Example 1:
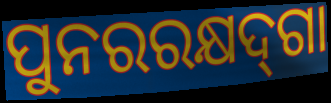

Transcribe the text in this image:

ପୁନରରକ୍ଷଦ୍‌ଗା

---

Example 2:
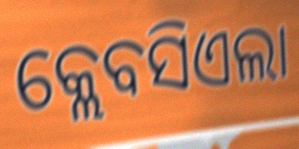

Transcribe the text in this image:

କ୍ଲେବସିଏଲା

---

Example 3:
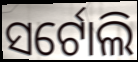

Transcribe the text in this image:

ସର୍ଟୋଲି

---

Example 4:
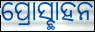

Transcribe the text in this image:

ପ୍ରୋସ୍ଛାହନ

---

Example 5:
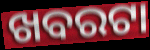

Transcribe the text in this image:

ଖବରଟା